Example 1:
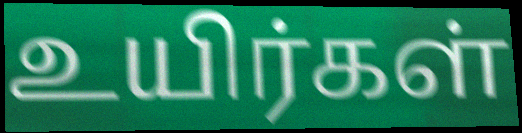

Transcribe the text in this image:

உயிர்கள்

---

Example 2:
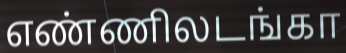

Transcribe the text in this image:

எண்ணிலடங்கா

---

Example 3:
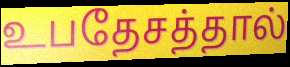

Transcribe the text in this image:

உபதேசத்தால்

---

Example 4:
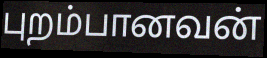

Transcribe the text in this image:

புறம்பானவன்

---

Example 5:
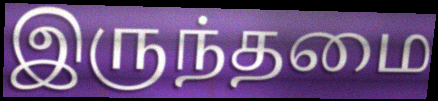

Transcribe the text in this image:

இருந்தமை